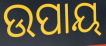
ଉପାୟ